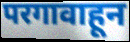
परगावाहून